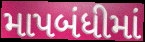
માપબંધીમાં